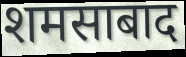
शमसाबाद